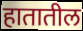
हातातील